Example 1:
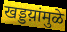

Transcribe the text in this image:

खड्डय़ांमुळे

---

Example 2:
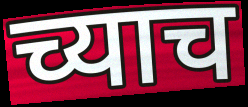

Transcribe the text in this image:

च्याच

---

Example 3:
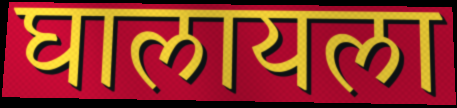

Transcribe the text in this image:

घालायला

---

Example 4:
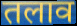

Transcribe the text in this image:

तलाव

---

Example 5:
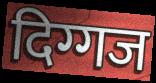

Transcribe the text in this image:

दिग्गज